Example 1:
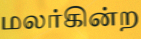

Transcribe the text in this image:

மலர்கின்ற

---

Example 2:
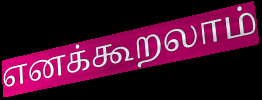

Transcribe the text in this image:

எனக்கூறலாம்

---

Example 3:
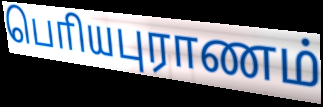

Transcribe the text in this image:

பெரியபுராணம்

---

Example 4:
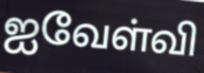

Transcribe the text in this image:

ஐவேள்வி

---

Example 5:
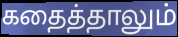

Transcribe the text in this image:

கதைத்தாலும்